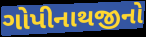
ગોપીનાથજીનો